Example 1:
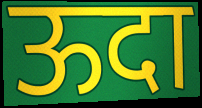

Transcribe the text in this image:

ऊदा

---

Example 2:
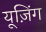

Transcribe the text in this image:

यूज़िंग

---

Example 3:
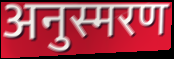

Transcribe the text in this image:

अनुस्मरण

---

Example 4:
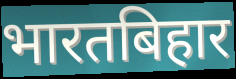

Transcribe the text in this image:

भारतबिहार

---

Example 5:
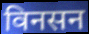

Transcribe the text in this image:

विनसन